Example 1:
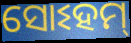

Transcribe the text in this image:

ସୋଽହମ୍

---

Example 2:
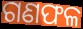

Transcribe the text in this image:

ଗଣଫଳ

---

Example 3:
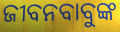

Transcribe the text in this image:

ଜୀବନବାବୁଙ୍କ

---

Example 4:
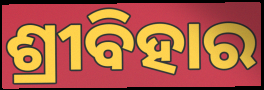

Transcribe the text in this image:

ଶ୍ରୀବିହାର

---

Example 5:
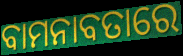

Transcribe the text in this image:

ବାମନାବତାରେ